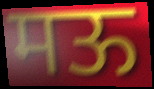
मऊ